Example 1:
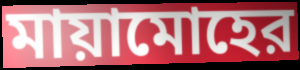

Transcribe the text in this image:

মায়ামোহের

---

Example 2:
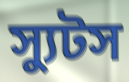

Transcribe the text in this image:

স্যুটস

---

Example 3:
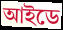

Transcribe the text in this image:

আইডে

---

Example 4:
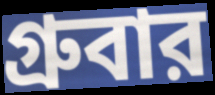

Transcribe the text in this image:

গ্রুবার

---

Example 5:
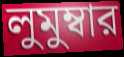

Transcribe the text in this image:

লুমুম্বার